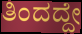
ತಿಂದದ್ದೇ